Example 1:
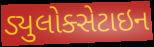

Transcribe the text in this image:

ડ્યુલોક્સેટાઇન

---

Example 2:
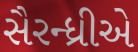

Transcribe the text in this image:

સૈરન્ધ્રીએ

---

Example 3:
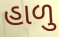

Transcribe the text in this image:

હાળુ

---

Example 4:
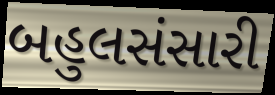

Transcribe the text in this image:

બહુલસંસારી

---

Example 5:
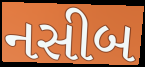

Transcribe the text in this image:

નસીબ